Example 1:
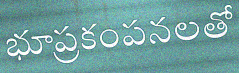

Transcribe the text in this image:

భూప్రకంపనలతో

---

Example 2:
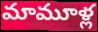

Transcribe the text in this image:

మామూళ్ల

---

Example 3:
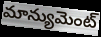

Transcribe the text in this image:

మాన్యుమెంట్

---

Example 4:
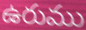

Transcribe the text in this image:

ఉరుము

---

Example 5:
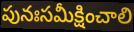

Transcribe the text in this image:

పునఃసమీక్షించాలి